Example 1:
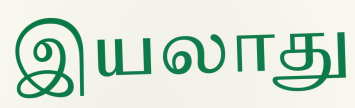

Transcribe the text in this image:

இயலாது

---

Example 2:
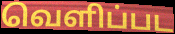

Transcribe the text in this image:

வெளிப்பட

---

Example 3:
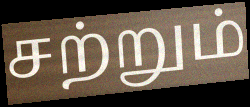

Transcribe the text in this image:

சற்றும்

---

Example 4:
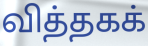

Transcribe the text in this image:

வித்தகக்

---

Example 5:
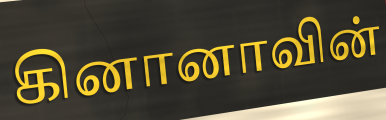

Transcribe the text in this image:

கினானாவின்